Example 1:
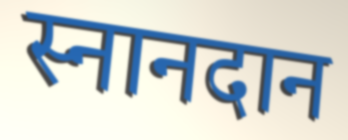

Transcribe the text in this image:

स्नानदान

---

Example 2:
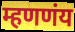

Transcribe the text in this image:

म्हणणंय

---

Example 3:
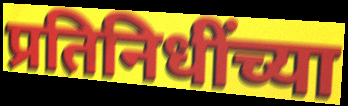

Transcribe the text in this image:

प्रतिनिधींच्या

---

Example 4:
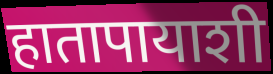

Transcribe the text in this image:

हातापायाशी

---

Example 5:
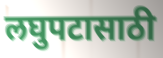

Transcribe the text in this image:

लघुपटासाठी